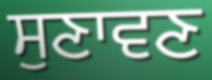
ਸੁਣਾਵਣ